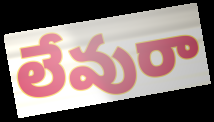
లేవురా